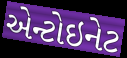
એન્ટોઇનેટ